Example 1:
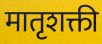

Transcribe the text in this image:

मातृशक्ती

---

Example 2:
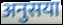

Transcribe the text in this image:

अनुसया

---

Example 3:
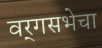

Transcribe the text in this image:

वर्गसभेचा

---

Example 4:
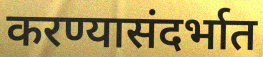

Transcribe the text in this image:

करण्यासंदर्भात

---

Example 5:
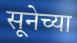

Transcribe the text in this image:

सूनेच्या